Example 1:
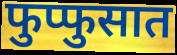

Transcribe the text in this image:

फुप्फुसात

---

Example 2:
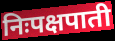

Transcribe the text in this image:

निःपक्षपाती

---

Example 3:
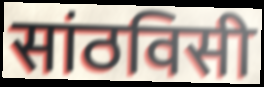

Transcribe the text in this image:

सांठविसी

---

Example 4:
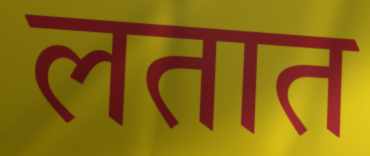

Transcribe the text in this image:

लतात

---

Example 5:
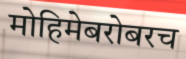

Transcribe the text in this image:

मोहिमेबरोबरच